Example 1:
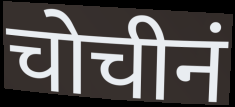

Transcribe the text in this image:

चोचीनं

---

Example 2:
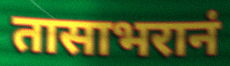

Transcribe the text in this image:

तासाभरानं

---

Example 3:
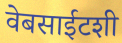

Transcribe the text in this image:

वेबसाईटशी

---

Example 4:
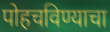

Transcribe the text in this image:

पोहचविण्याचा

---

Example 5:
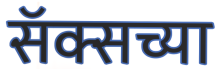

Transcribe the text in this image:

सॅक्सच्या